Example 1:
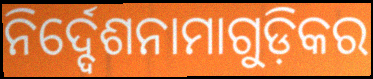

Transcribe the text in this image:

ନିର୍ଦ୍ଦେଶନାମାଗୁଡ଼ିକର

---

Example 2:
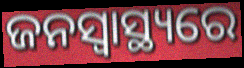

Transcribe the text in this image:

ଜନସ୍ବାସ୍ଥ୍ୟରେ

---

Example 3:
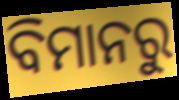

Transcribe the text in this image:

ବିମାନରୁ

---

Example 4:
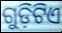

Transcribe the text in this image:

ଗୁଡ଼ିଟିଏ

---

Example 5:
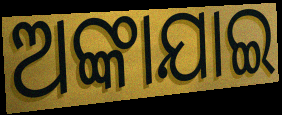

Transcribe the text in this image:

ଅଙ୍କାଯାଇ